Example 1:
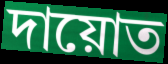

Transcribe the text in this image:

দায়োত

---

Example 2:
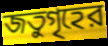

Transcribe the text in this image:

জতুগৃহের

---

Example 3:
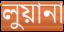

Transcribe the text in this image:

লুয়ানা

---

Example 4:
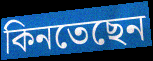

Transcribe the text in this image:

কিনতেছেন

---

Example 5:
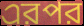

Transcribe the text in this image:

এরপর